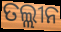
ତଲ୍ଲୀନ